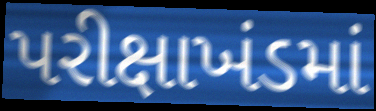
પરીક્ષાખંડમાં